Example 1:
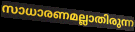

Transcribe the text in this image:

സാധാരണമല്ലാതിരുന്ന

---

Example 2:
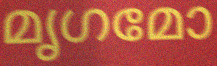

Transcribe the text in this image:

മൃഗമോ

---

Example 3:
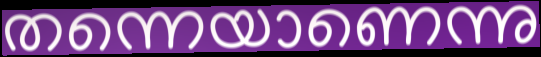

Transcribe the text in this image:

തന്നെയാണെന്നു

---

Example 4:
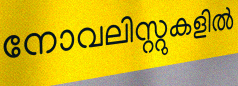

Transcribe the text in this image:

നോവലിസ്റ്റുകളിൽ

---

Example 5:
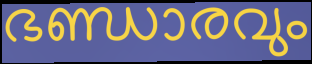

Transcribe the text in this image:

ഭണ്ഡാരവും